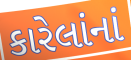
કારેલાંનાં